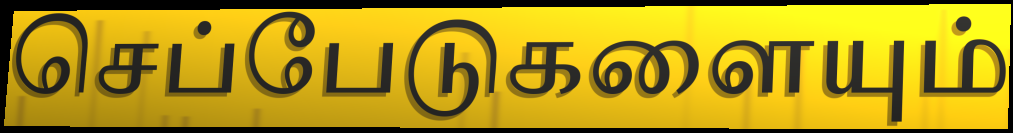
செப்பேடுகளையும்